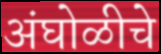
अंघोळीचे